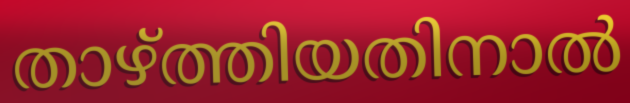
താഴ്ത്തിയതിനാൽ